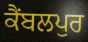
ਕੈਂਬਲਪੁਰ